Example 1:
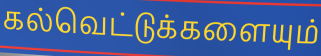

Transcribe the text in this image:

கல்வெட்டுக்களையும்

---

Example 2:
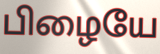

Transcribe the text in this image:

பிழையே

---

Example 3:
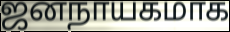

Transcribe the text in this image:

ஜனநாயகமாக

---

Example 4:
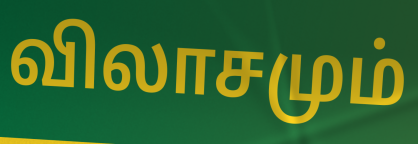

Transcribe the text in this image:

விலாசமும்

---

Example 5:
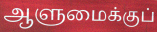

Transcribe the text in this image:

ஆளுமைக்குப்